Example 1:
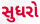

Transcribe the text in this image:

સુધરો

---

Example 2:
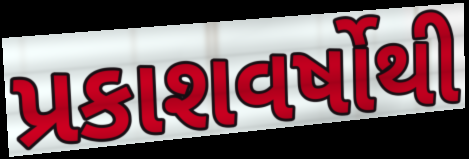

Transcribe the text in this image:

પ્રકાશવર્ષોથી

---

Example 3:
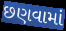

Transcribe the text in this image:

છણવામાં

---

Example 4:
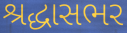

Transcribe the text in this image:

શ્રદ્ધાસભર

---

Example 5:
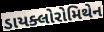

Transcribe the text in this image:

ડાયક્લોરોમિથેન